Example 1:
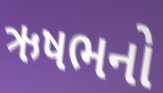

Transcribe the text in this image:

ઋષભનો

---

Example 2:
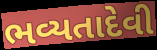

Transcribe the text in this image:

ભવ્યતાદેવી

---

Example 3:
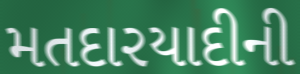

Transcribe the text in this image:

મતદારયાદીની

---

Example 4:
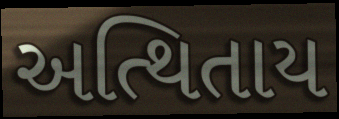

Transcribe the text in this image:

અત્થિતાય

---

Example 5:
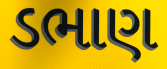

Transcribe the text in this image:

ડભાણ